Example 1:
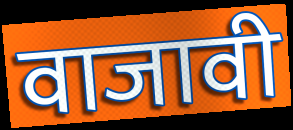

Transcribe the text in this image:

वाजावी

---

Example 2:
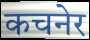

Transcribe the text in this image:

कचनेर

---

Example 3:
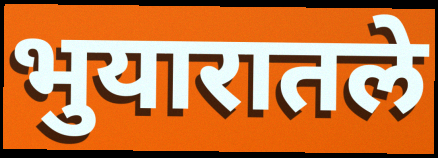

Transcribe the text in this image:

भुयारातले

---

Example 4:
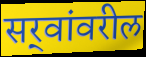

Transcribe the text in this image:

सर्वांवरील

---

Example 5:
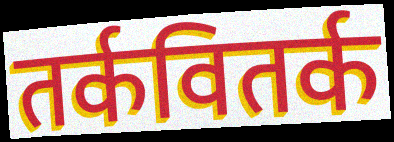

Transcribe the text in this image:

तर्कवितर्क